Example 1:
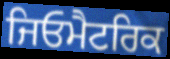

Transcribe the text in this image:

ਜਿਓਮੈਟਰਿਕ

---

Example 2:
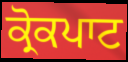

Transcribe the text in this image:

ਕ੍ਰੋਕਪਾਟ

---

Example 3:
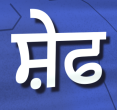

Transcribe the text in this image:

ਸ਼ੇਫ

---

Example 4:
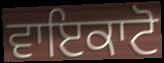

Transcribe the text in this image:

ਵਾਇਕਾਟੋ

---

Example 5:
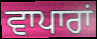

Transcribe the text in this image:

ਵਾਪਾਰਾਂ